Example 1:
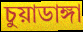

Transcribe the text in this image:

চুয়াডাঙ্গা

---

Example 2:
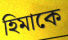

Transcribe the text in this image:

হিমাকে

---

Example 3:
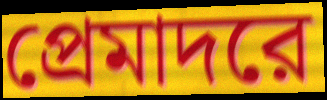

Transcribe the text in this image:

প্রেমাদরে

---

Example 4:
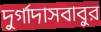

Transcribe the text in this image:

দুর্গাদাসবাবুর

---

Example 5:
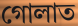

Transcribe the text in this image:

গোলাত